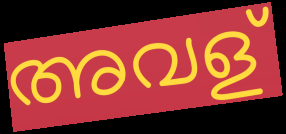
അവള്